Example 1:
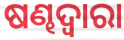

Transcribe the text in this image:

ଷଣ୍ଢଦ୍ୱାରା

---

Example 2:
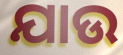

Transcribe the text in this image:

ଯାଉ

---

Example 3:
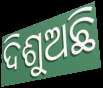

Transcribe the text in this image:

ଦିଶୁଅଛି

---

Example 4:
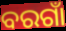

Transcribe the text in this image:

ବରଗାଁ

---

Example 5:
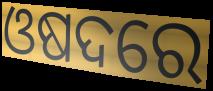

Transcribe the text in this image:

ଓଷଦରେ